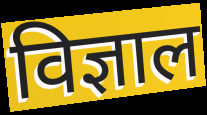
विज्ञाल